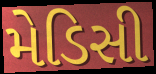
મેડિસી